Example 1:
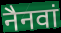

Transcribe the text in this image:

नैनवां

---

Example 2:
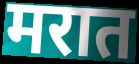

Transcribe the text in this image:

मरात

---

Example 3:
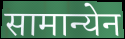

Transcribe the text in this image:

सामान्येन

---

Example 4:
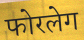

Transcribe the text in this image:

फोरलेग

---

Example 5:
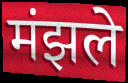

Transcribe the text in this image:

मंझले